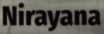
Nirayana